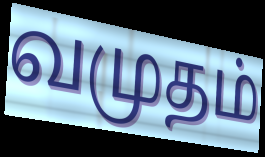
வமுதம்